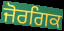
ਜੋਰਗਿਕ